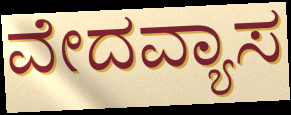
ವೇದವ್ಯಾಸ